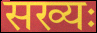
सख्यः